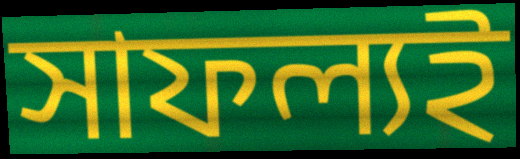
সাফল্যই